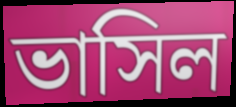
ভাসিল